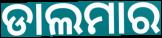
ଡାଲମାର